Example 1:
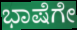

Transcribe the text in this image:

ಭಾಷೆಗೇ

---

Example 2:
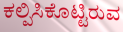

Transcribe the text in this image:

ಕಲ್ಪಿಸಿಕೊಟ್ಟಿರುವ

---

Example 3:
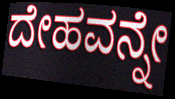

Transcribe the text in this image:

ದೇಹವನ್ನೇ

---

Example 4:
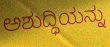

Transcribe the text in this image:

ಅಶುದ್ಧಿಯನ್ನು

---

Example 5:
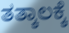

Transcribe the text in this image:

ತತ್ಕಾಲಕ್ಕೆ